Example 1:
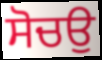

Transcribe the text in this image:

ਸੋਚਉ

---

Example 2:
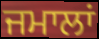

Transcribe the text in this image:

ਜਮਾਲਾਂ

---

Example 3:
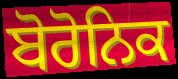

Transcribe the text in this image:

ਬੋਰੋਨਿਕ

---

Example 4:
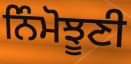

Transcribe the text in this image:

ਨਿੰਮੋਝੂਣੀ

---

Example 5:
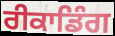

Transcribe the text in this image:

ਰੀਕਾਡਿੰਗ